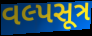
વલ્પસૂત્ર